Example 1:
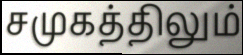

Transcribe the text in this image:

சமுகத்திலும்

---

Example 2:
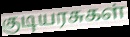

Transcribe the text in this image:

குடியரசுகள்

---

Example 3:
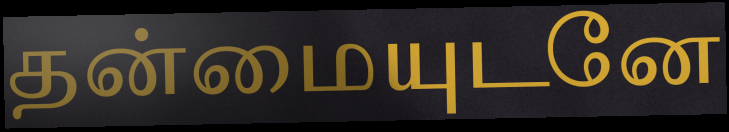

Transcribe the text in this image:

தன்மையுடனே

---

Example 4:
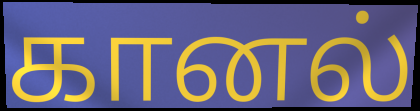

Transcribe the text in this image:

கானல்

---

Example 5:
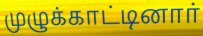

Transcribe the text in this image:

முழுக்காட்டினார்